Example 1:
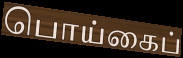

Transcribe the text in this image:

பொய்கைப்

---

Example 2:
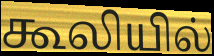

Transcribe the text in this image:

கூலியில்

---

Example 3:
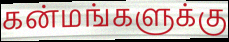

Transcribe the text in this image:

கன்மங்களுக்கு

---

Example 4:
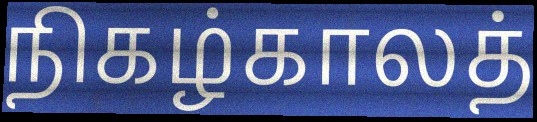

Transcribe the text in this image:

நிகழ்காலத்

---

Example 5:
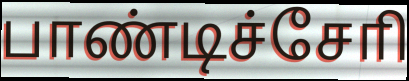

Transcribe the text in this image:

பாண்டிச்சேரி